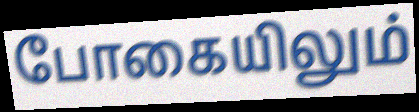
போகையிலும்